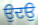
ਉਦਉ